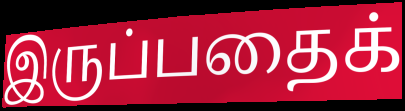
இருப்பதைக்